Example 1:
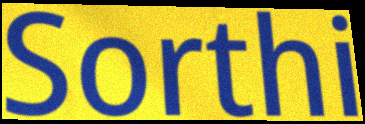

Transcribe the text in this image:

Sorthi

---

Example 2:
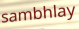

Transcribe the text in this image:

sambhlay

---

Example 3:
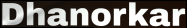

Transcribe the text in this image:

Dhanorkar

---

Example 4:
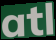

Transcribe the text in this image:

atl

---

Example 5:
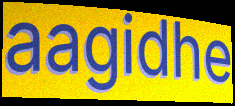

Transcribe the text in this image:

aagidhe